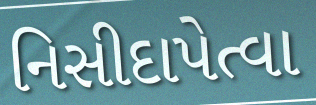
નિસીદાપેત્વા